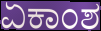
ಏಕಾಂಶ